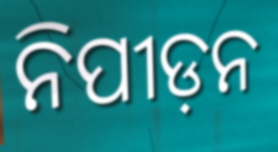
ନିପୀଡ଼ନ